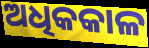
ଅଧିକକାଳ